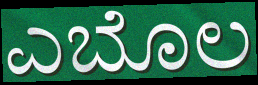
ಎಬೊಲ